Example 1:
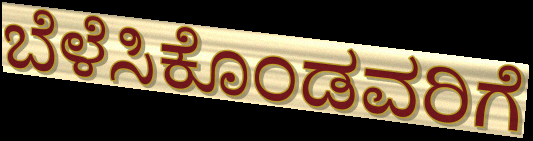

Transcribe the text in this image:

ಬೆಳೆಸಿಕೊಂಡವರಿಗೆ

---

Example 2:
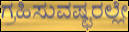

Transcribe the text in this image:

ಗ್ರಹಿಸುವಷ್ಟರಲ್ಲೇ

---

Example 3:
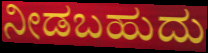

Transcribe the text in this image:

ನೀಡಬಹುದು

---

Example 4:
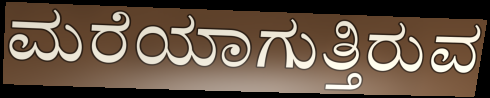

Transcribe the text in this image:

ಮರೆಯಾಗುತ್ತಿರುವ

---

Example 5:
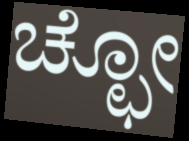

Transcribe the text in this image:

ಚ್ಛೋ